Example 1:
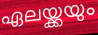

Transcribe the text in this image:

ഏലയ്ക്കയും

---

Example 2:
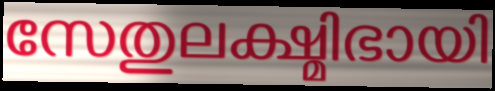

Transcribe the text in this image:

സേതുലക്ഷ്മിഭായി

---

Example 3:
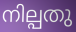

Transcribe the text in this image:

നില്പതു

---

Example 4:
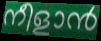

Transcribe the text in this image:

നീളാൻ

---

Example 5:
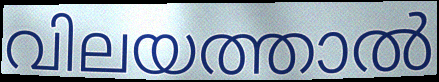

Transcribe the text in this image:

വിലയത്താൽ